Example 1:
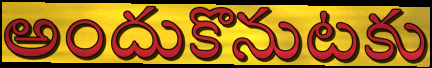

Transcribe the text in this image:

అందుకొనుటకు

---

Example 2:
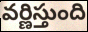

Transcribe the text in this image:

వర్ణిస్తుంది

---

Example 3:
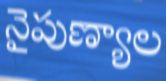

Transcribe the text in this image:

నైపుణ్యాల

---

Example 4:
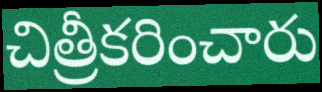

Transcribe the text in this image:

చిత్రీకరించారు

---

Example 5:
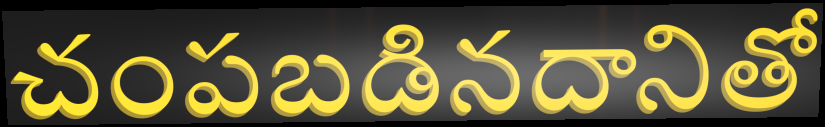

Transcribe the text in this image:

చంపబడినదానితో